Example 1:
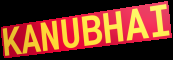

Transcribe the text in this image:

KANUBHAI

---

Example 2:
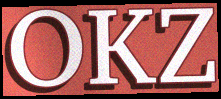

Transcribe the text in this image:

OKZ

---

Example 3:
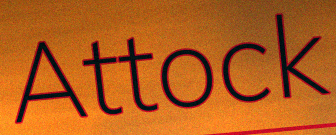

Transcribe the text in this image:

Attock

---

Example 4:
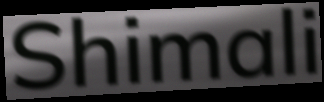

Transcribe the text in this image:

Shimali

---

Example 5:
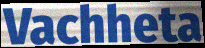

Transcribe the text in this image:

Vachheta